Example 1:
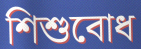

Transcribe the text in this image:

শিশুবোধ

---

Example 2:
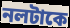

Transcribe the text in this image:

নলটাকে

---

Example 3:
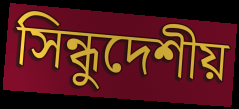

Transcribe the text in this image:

সিন্ধুদেশীয়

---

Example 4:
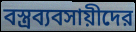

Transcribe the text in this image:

বস্ত্রব্যবসায়ীদের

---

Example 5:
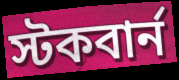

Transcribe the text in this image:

স্টকবার্ন